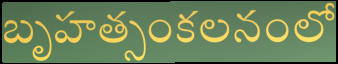
బృహత్సంకలనంలో